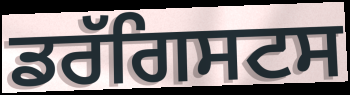
ਡਰੱਗਿਸਟਸ